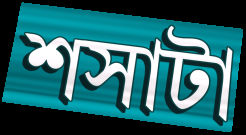
শসাটা